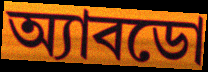
অ্যাবডো